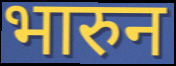
भारुन